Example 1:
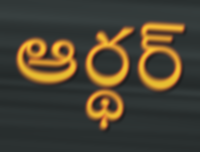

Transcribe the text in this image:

ఆర్థర్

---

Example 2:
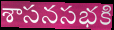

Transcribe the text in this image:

శాసనసభకి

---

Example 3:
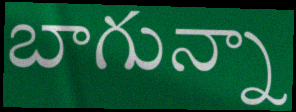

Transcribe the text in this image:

బాగున్నా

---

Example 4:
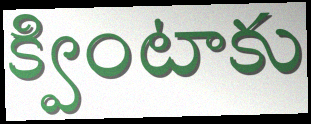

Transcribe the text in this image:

క్వింటాకు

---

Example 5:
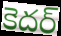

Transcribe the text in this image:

కెదర్